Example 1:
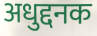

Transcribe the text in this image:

अधुद्दनक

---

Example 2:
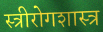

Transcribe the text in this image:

स्त्रीरोगशास्त्र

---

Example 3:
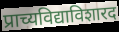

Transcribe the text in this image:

प्राच्यविद्याविशारद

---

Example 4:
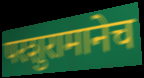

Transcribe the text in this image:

परशुरामानेच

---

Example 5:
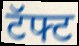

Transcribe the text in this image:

टॅफ्ट